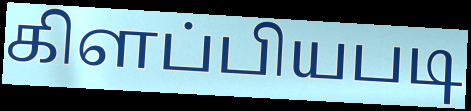
கிளப்பியபடி